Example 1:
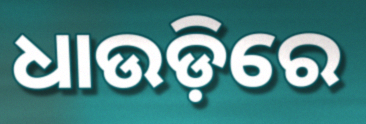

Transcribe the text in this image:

ଧାଉଡ଼ିରେ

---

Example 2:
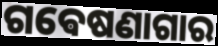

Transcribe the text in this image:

ଗଵେଷଣାଗାର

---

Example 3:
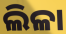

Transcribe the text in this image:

ଲିଳା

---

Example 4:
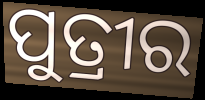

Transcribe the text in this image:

ପୁତ୍ରୀର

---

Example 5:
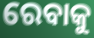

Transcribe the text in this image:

ରେବାକୁ